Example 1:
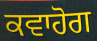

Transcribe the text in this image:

ਕਵਾਹੋਗ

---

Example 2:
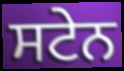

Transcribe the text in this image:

ਸਟੇਨ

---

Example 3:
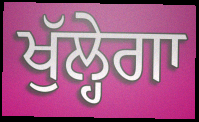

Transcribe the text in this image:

ਖੁੱਲ੍ਹੇਗਾ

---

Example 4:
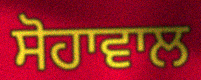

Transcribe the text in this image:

ਸੋਹਾਵਾਲ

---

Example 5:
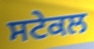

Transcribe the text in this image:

ਸਟੇਕਲ